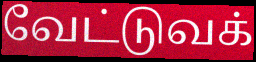
வேட்டுவக்